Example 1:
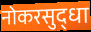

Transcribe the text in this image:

नोकरसुद्धा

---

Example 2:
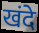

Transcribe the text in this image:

खंदे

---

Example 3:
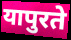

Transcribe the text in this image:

यापुरते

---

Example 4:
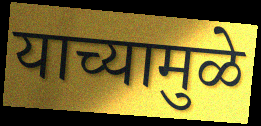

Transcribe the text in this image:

याच्यामुळे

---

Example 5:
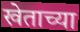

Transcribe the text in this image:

खेताच्या